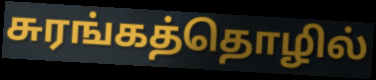
சுரங்கத்தொழில்